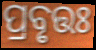
ପ୍ରବୃତ୍ତଃ